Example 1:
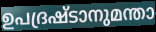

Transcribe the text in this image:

ഉപദ്രഷ്ടാനുമന്താ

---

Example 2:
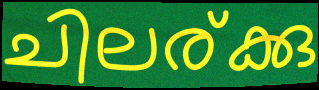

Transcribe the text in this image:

ചിലര്ക്കു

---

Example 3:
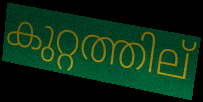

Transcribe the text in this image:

കുറ്റത്തില്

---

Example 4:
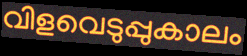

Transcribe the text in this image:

വിളവെടുപ്പുകാലം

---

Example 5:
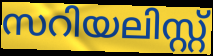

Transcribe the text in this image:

സറിയലിസ്റ്റ്